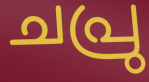
ചപ്രു